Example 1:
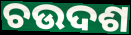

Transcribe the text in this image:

ଚଉଦଶ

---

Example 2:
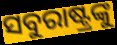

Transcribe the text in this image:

ସବୁରାଷ୍ଟ୍ରଙ୍କୁ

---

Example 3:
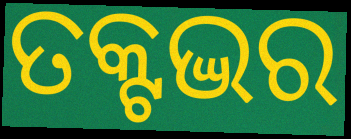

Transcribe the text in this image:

ତକ୍ଟଦ୍ଭର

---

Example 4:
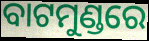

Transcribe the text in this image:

ବାଟମୁଣ୍ଡରେ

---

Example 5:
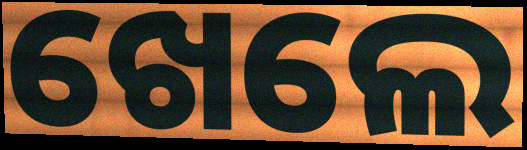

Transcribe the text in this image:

ଖେଲେ